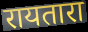
रायतारा